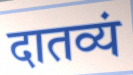
दातव्यं